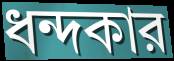
ধন্দকার